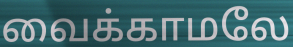
வைக்காமலே